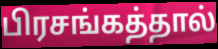
பிரசங்கத்தால்